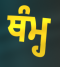
ਥੰਮ੍ਹ